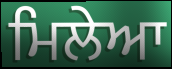
ਮਿਲੇਆ